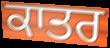
ਕਾਤਰ